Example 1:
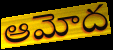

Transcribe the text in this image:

ఆమోద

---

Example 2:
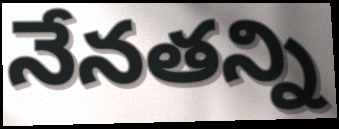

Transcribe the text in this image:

నేనతన్ని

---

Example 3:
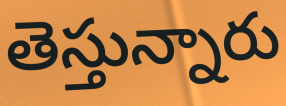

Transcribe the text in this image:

తెస్తున్నారు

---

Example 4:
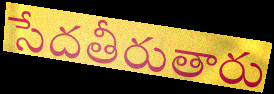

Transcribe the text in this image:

సేదతీరుతారు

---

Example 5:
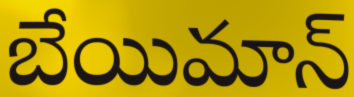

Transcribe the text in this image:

బేయిమాన్